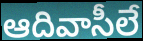
ఆదివాసీలే